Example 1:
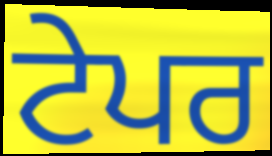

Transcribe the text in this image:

ਟੇਪਰ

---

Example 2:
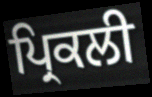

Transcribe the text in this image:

ਪ੍ਰਿਕਲੀ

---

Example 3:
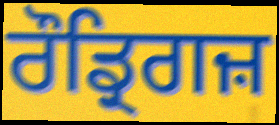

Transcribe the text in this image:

ਰੌਡ੍ਰਿਗਜ਼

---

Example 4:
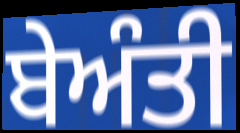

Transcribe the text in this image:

ਬੇਅੰਤੀ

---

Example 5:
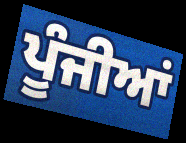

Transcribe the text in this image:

ਪੂੰਜੀਆਂ